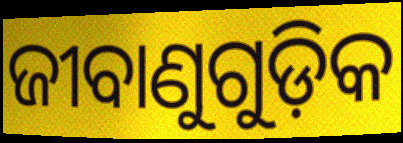
ଜୀବାଣୁଗୁଡ଼ିକ